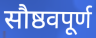
सौष्ठवपूर्ण